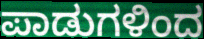
ಪಾಡುಗಳಿಂದ